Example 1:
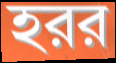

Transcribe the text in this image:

হরর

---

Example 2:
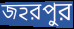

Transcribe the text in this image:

জহরপুর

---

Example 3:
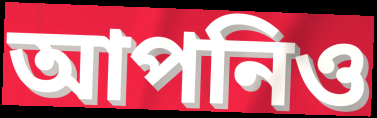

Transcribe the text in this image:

আপনিও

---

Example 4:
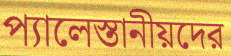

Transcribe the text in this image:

প্যালেস্তানীয়দের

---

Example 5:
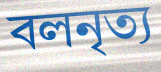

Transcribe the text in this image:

বলনৃত্য